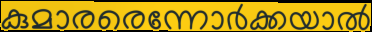
കുമാരരെന്നോർക്കയാൽ